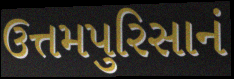
ઉત્તમપુરિસાનં